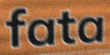
fata